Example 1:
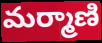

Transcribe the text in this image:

మర్మాణి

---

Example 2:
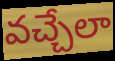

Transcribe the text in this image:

వచ్చేలా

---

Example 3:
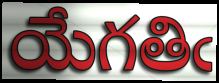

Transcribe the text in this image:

యేగతిఁ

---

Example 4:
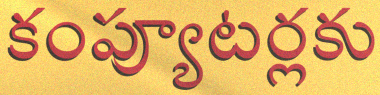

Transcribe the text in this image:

కంప్యూటర్లకు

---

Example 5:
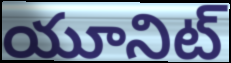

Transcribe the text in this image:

యూనిట్